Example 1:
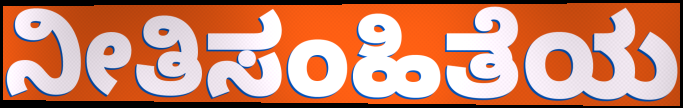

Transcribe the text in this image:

ನೀತಿಸಂಹಿತೆಯ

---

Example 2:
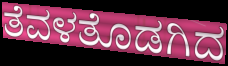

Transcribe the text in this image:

ತೆವಳತೊಡಗಿದ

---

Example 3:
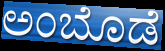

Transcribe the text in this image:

ಅಂಬೊಡೆ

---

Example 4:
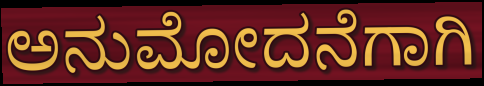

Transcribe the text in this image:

ಅನುಮೋದನೆಗಾಗಿ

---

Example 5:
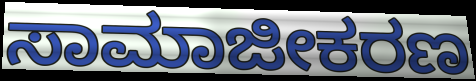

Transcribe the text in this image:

ಸಾಮಾಜೀಕರಣ